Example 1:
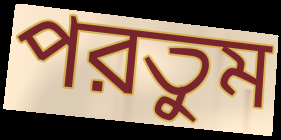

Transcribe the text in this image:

পরতুম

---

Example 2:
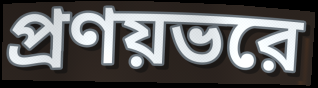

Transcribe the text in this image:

প্রণয়ভরে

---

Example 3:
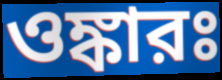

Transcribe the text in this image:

ওঙ্কারঃ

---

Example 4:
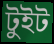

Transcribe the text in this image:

টুইট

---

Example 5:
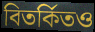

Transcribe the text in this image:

বিতর্কিতও